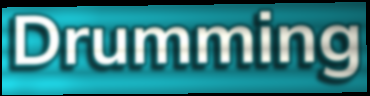
Drumming